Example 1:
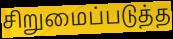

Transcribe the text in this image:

சிறுமைப்படுத்த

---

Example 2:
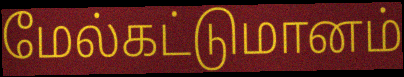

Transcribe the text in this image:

மேல்கட்டுமானம்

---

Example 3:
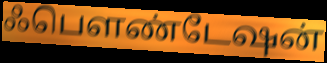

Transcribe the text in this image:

ஃபௌண்டேஷன்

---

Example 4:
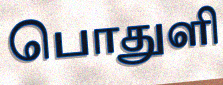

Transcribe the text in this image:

பொதுளி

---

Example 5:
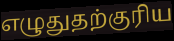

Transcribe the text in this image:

எழுதுதற்குரிய